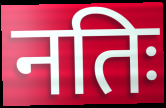
नतिः